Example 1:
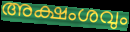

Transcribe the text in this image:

അക്ഷംശവും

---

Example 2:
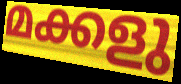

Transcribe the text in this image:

മക്കളു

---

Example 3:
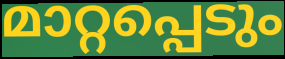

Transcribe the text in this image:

മാറ്റപ്പെടും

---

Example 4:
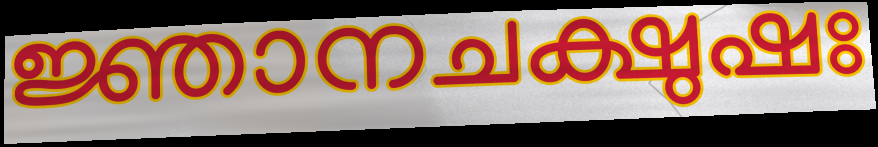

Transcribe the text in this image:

ജ്ഞാനചക്ഷുഷഃ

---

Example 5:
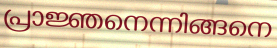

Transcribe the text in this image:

പ്രാജ്ഞനെന്നിങ്ങനെ